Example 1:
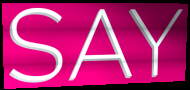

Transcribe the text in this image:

SAY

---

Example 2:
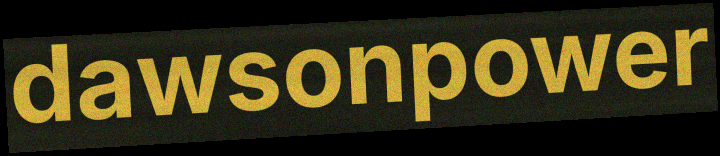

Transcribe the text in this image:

dawsonpower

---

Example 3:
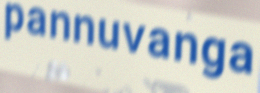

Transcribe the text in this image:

pannuvanga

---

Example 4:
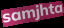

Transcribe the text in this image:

samjhta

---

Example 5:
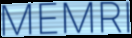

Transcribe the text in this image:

MEMRI